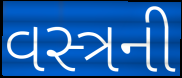
વસ્ત્રની